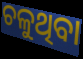
ଚଳୁଥିବା